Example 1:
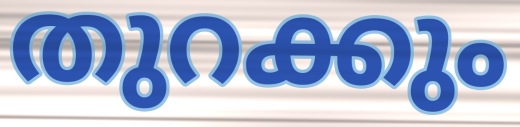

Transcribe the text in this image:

തുറക്കും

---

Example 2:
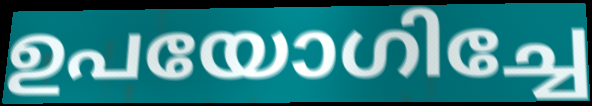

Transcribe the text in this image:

ഉപയോഗിച്ചേ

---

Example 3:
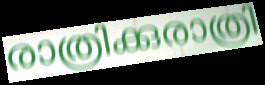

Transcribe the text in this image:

രാത്രിക്കുരാത്രി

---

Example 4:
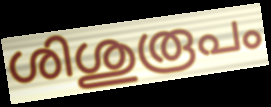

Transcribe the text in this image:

ശിശുരൂപം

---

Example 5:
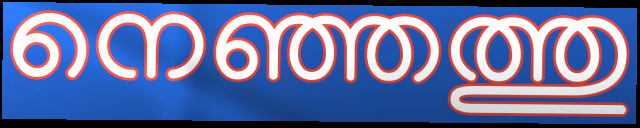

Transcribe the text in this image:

നെഞ്ഞത്തു